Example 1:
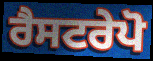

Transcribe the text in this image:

ਰੈਸਟਰੇਪੋ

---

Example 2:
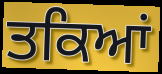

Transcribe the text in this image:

ਤਕਿਆਂ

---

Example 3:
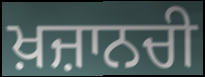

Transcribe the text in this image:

ਖ਼ਜ਼ਾਨਚੀ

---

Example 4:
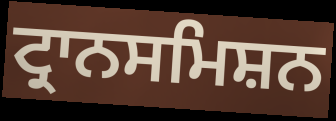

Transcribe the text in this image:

ਟ੍ਰਾਨਸਮਿਸ਼ਨ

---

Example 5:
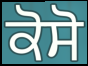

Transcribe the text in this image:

ਕੋਸੋ